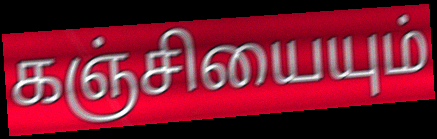
கஞ்சியையும்